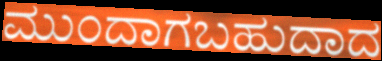
ಮುಂದಾಗಬಹುದಾದ